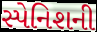
સ્પેનિશની